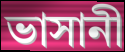
ভাসানী